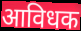
आविधक